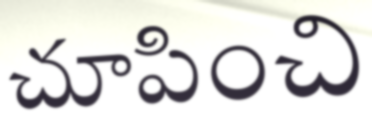
చూపించి